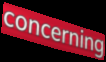
concerning